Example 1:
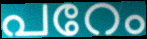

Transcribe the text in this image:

പറേം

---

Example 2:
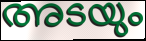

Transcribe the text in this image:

അടയും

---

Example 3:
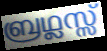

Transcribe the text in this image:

ബ്രഥ്ലസ്സ്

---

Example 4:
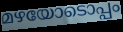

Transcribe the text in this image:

മഴയോടൊപ്പം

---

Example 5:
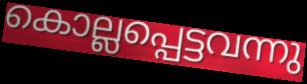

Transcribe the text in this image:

കൊല്ലപ്പെട്ടവന്നു